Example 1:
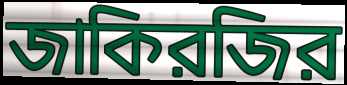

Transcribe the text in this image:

জাকিরজির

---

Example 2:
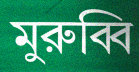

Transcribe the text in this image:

মুরুব্বি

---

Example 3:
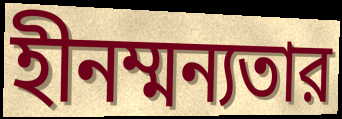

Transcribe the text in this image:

হীনম্মন্যতার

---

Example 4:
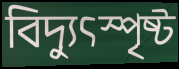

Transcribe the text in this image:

বিদ্যুৎস্পৃষ্ট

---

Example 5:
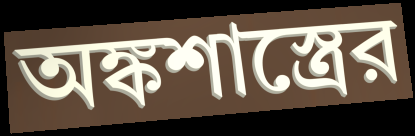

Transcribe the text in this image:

অঙ্কশাস্ত্রের